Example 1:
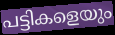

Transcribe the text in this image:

പട്ടികളെയും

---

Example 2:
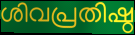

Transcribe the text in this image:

ശിവപ്രതിഷ്ഠ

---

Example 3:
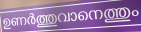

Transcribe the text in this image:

ഉണർത്തുവാനെത്തും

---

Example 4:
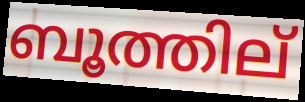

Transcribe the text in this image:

ബൂത്തില്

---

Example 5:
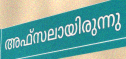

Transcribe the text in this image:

അഫ്സലായിരുന്നു